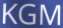
KGM